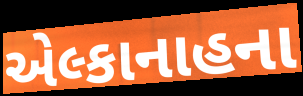
એલ્કાનાહના